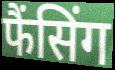
फैंसिंग